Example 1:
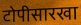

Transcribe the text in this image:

टोपीसारखा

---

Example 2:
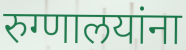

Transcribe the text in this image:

रुग्णालयांना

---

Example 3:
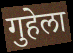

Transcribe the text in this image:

गुहेला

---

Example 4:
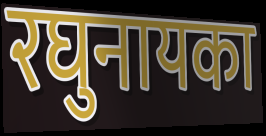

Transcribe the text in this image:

रघुनायका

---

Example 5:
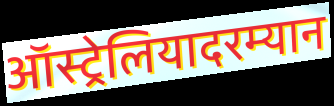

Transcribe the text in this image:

ऑस्ट्रेलियादरम्यान